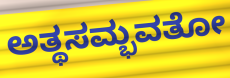
ಅತ್ಥಸಮ್ಭವತೋ